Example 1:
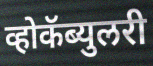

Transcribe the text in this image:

व्होकॅब्युलरी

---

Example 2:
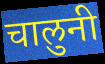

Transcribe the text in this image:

चालुनी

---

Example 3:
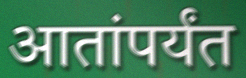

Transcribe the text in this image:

आतांपर्यंत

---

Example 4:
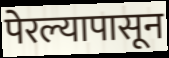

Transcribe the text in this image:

पेरल्यापासून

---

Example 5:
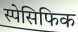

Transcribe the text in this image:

स्पेसिफिक